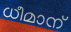
ധീമാന്